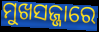
ମୁଖସଜ୍ଜାରେ